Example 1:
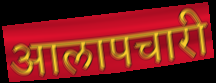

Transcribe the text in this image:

आलापचारी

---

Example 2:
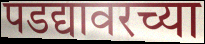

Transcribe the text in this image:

पडद्यावरच्या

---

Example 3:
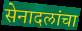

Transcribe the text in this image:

सेनादलांचा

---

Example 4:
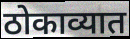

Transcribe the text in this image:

ठोकाव्यात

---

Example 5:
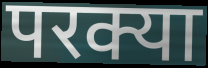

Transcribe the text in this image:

परक्या